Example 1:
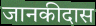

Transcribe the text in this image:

जानकीदास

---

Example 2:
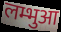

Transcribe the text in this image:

लम्भुआ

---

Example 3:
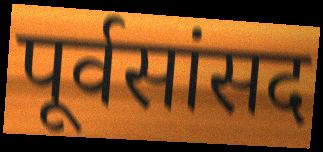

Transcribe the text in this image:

पूर्वसांसद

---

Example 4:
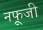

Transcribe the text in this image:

नफूजी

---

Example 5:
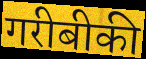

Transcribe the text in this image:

गरीबीकी